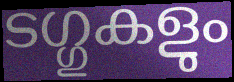
ടഗ്ഗുകളും